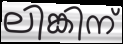
ലിങ്കിന്